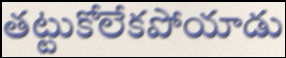
తట్టుకోలేకపోయాడు